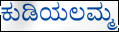
ಕುಡಿಯಲಮ್ಮ